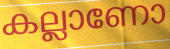
കല്ലാണോ